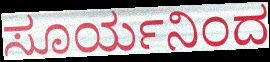
ಸೂರ್ಯನಿಂದ